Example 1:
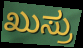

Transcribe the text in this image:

ಖುಸ್ರು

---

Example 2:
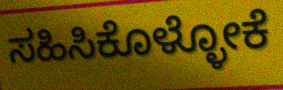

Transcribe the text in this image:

ಸಹಿಸಿಕೊಳ್ಳೋಕೆ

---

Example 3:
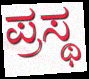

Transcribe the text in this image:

ಪ್ರಸ್ಥ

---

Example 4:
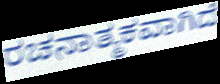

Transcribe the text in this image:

ರಚನಾತ್ಮಕವಾಗಿದೆ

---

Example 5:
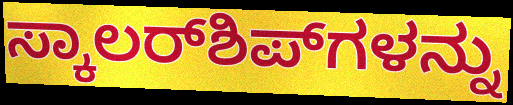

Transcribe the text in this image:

ಸ್ಕಾಲರ್‌ಶಿಪ್‌ಗಳನ್ನು